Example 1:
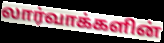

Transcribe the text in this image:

லார்வாக்களின்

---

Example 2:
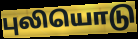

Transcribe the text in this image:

புலியொடு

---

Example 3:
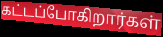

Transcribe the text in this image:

கட்டப்போகிறார்கள்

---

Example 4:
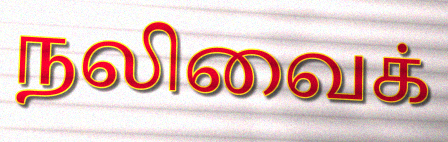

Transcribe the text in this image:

நலிவைக்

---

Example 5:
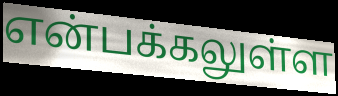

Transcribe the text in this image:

என்பக்கலுள்ள